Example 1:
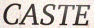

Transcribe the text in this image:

CASTE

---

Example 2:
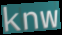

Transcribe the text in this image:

knw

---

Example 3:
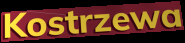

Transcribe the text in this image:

Kostrzewa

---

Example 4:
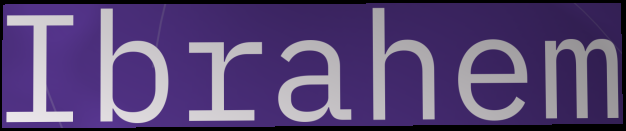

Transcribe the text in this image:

Ibrahem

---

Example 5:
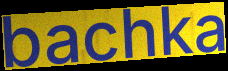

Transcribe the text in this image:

bachka